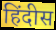
हिंदीस